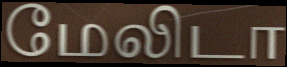
மேலிடா